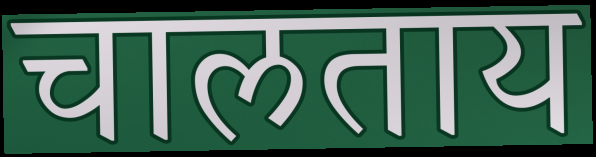
चालताय